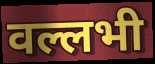
वल्लभी